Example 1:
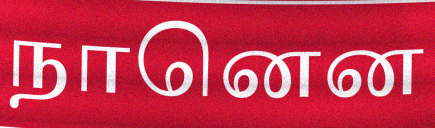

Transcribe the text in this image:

நானென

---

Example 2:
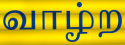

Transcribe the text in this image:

வாழ்ற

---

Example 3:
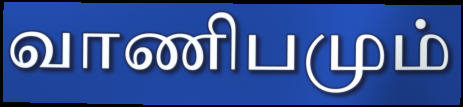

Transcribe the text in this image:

வாணிபமும்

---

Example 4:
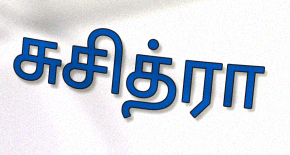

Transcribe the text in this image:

சுசித்ரா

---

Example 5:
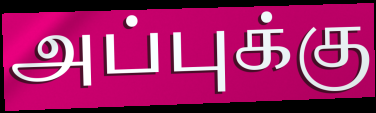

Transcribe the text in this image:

அப்புக்கு